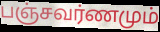
பஞ்சவர்ணமும்